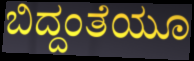
ಬಿದ್ದಂತೆಯೂ